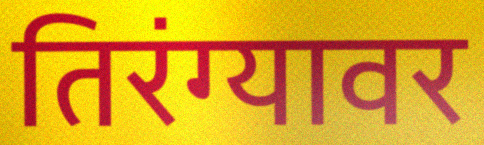
तिरंग्यावर